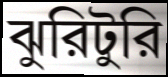
ঝুরিটুরি